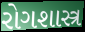
રોગશાસ્ત્ર